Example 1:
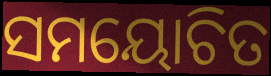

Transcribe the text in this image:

ସମୟୋଚିତ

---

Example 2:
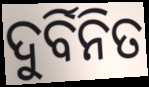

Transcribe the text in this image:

ଦୁର୍ବିନିତ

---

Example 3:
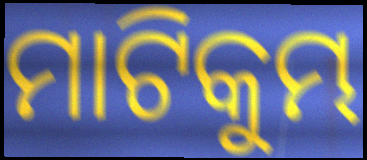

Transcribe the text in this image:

ମାଟିକୁମ୍ଭ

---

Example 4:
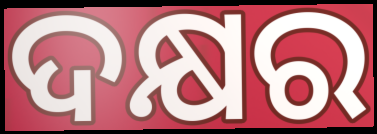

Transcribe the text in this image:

ଦକ୍ଷର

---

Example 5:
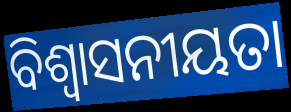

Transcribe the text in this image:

ବିଶ୍ୱାସନୀୟତା